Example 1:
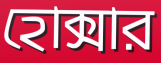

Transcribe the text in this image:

হোক্সার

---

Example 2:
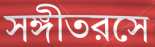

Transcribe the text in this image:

সঙ্গীতরসে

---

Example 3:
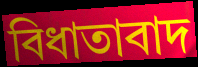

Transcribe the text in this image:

বিধাতাবাদ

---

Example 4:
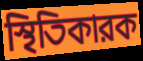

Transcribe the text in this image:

স্থিতিকারক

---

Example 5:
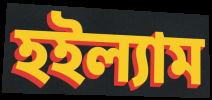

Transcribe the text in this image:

হইল্যাম